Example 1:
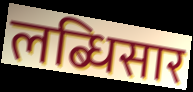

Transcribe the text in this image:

लब्धिसार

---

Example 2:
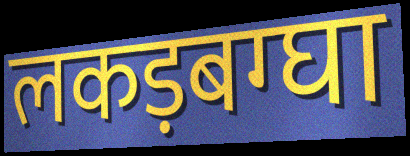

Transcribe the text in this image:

लकड़बग्घा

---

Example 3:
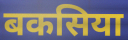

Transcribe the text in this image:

बकसिया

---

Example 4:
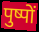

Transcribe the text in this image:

पुष्पों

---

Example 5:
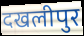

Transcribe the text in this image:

दखलीपुर